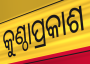
କୁଣ୍ଠାପ୍ରକାଶ